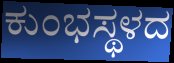
ಕುಂಭಸ್ಥಳದ